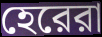
হেরেরা